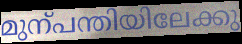
മുന്പന്തിയിലേക്കു